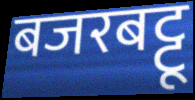
बजरबट्टू